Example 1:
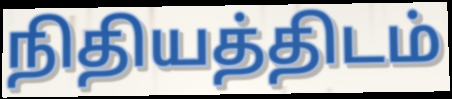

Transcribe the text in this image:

நிதியத்திடம்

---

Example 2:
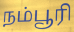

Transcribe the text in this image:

நம்பூரி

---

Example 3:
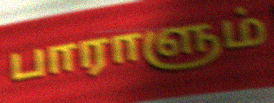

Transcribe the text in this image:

பாராளும்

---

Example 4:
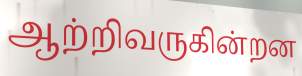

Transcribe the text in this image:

ஆற்றிவருகின்றன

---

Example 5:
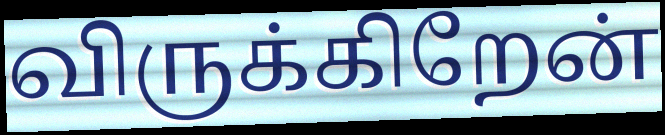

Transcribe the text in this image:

விருக்கிறேன்